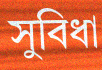
সুবিধা